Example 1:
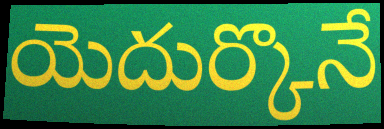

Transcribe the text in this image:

యెదుర్కొనే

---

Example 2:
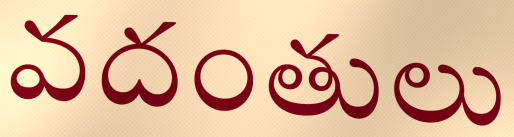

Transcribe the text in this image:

వదంతులు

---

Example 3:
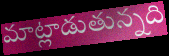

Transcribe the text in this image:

మాట్లాడుతున్నది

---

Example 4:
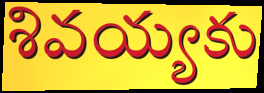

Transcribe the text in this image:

శివయ్యకు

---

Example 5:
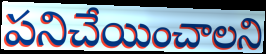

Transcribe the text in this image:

పనిచేయించాలని